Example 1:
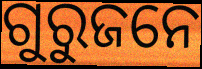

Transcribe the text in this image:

ଗୁରୁଜନେ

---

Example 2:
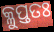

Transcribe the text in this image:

କ୍ଳୁପ୍ତତଃ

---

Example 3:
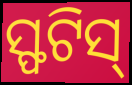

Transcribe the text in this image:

ସ୍ଫଟିସ୍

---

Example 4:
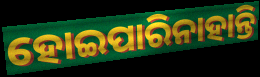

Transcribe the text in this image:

ହୋଇପାରିନାହାନ୍ତି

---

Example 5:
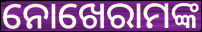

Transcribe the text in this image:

ନୋଖେରାମଙ୍କ